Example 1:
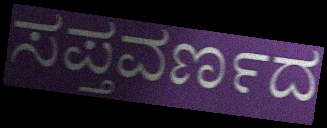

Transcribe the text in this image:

ಸಪ್ತವರ್ಣದ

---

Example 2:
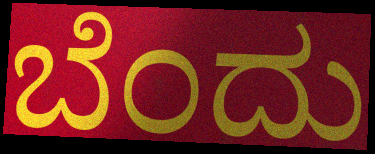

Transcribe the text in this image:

ಬೆಂದು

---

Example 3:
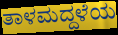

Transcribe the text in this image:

ತಾಳಮದ್ದಳೆಯ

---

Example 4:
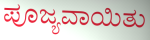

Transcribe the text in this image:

ಪೂಜ್ಯವಾಯಿತು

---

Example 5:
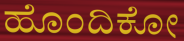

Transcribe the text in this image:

ಹೊಂದಿಕೋ